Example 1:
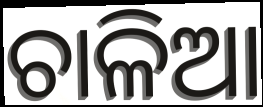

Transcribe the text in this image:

ଚାଳିଆ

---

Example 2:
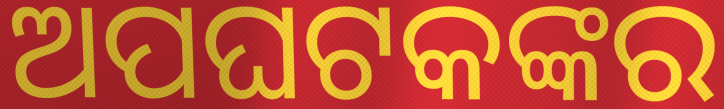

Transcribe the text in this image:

ଅପଘଟକଙ୍କର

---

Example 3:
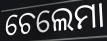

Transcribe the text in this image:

ଚେଲେମା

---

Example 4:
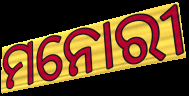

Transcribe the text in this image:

ମନୋରୀ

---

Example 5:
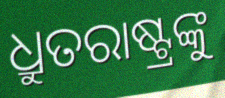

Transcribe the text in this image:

ଧ୍ରୁତରାଷ୍ଟ୍ରଙ୍କୁ